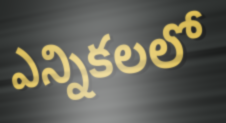
ఎన్నికలలో